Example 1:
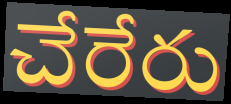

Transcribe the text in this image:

చేరేరు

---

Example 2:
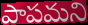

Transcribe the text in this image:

పాపమని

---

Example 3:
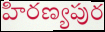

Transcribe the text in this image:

హిరణ్యపుర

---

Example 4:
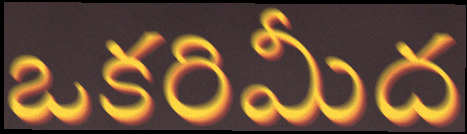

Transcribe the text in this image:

ఒకరిమీద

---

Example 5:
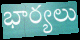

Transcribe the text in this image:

భార్యలు